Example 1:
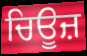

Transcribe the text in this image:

ਚਿਊਜ਼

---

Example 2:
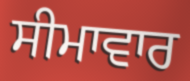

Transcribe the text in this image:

ਸੀਮਾਵਾਰ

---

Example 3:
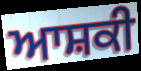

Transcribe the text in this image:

ਆਸ਼ਕੀ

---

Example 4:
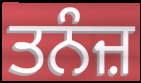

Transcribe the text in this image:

ਤਨੰਜ਼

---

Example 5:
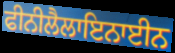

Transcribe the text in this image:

ਫੀਨੀਲੈਲਾਇਨਾਈਨ